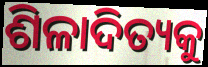
ଶିଳାଦିତ୍ୟକୁ